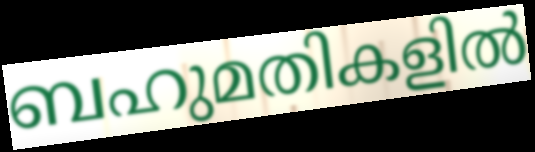
ബഹുമതികളിൽ